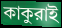
কাকুরাই